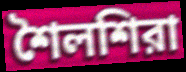
শৈলশিরা